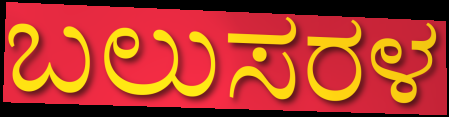
ಬಲುಸರಳ